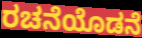
ರಚನೆಯೊಡನೆ